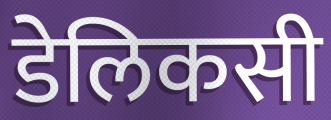
डेलिकसी